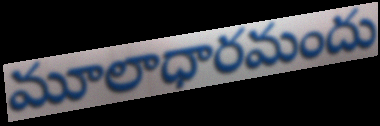
మూలాధారమందు